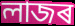
লাজৰ